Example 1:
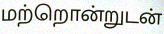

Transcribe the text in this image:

மற்றொன்றுடன்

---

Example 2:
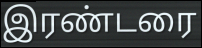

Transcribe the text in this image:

இரண்டரை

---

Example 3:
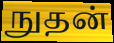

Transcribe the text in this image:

நுதன்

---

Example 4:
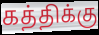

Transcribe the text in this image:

கத்திக்கு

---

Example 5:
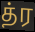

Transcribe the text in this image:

த்ர